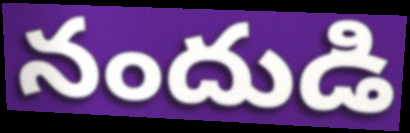
నందుడి